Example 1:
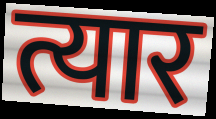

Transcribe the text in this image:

त्यार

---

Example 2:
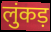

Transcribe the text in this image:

लुंकड़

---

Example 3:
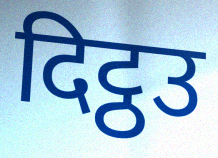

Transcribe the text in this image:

दिट्ठउ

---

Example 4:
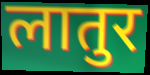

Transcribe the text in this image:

लातुर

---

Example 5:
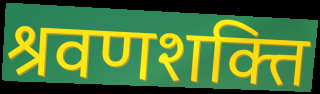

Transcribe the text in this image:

श्रवणशक्ति